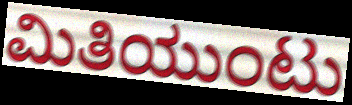
ಮಿತಿಯುಂಟು